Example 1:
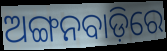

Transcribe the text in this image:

ଅଙ୍ଗନବାଡ଼ିରେ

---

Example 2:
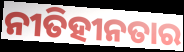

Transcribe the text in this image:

ନୀତିହୀନତାର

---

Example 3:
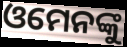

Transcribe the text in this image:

ଓମେନଙ୍କୁ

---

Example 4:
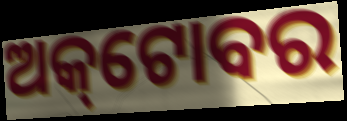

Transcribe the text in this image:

ଅକ୍‌ଟୋବର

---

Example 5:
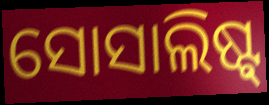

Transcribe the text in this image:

ସୋସାଲିଷ୍ଟ୍